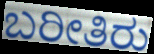
ಬರೀತಿರು